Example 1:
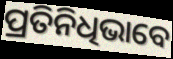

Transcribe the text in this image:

ପ୍ରତିନିଧିଭାବେ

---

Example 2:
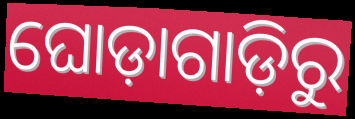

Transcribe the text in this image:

ଘୋଡ଼ାଗାଡ଼ିରୁ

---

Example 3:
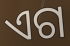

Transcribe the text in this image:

ଏଗ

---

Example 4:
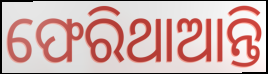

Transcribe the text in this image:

ଫେରିଥାଆନ୍ତି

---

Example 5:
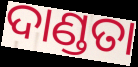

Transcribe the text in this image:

ଦାଣ୍ଡତା